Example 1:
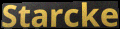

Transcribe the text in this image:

Starcke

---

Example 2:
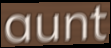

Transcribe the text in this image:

aunt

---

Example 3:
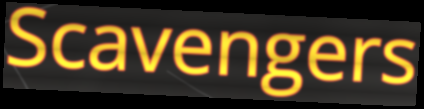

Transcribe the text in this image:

Scavengers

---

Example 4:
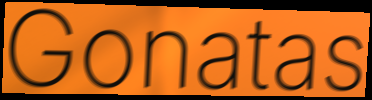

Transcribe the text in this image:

Gonatas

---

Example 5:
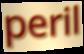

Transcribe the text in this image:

peril